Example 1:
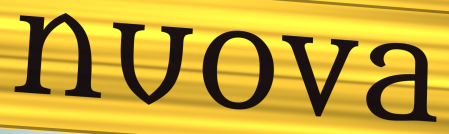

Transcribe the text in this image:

nuova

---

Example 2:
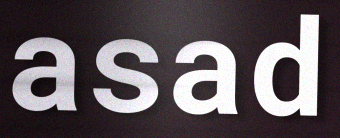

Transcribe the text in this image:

asad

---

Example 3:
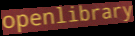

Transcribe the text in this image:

openlibrary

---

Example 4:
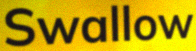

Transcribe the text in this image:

Swallow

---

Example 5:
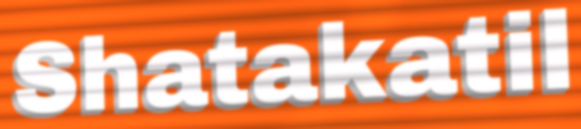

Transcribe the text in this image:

Shatakatil